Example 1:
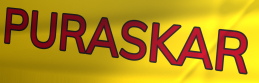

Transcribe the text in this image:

PURASKAR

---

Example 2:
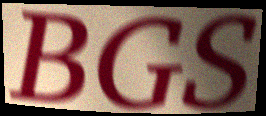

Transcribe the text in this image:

BGS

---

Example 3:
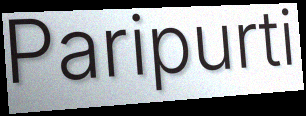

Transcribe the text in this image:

Paripurti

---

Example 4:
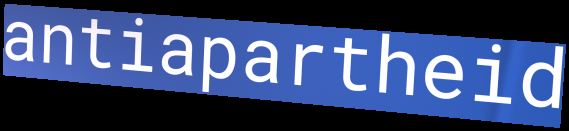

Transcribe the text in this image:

antiapartheid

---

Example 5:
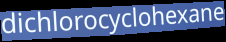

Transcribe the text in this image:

dichlorocyclohexane